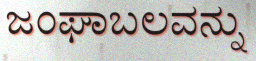
ಜಂಘಾಬಲವನ್ನು